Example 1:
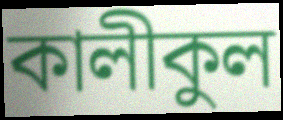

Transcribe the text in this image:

কালীকুল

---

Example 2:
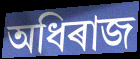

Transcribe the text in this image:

অধিৰাজ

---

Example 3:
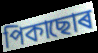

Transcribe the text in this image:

পিকাছোৰ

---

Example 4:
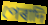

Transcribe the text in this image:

পেৰাদি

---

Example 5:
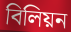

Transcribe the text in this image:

বিলিয়ন